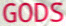
GODS